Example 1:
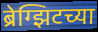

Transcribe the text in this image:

ब्रेग्झिटच्या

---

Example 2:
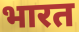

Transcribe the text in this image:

भारत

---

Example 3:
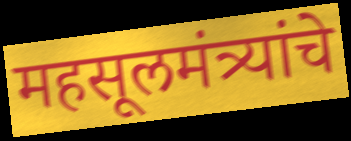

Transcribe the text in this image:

महसूलमंत्र्यांचे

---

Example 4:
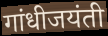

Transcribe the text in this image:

गांधीजयंती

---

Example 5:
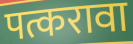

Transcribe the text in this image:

पत्करावा